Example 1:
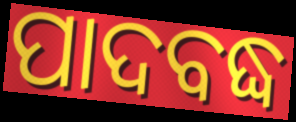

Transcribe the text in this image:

ପାଦବଦ୍ଧ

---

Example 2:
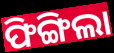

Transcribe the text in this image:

ଫିଙ୍ଗିଲା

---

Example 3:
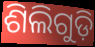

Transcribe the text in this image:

ଶିଲିଗୁଡ଼ି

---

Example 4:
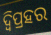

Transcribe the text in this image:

ଦ୍ବିପ୍ରହର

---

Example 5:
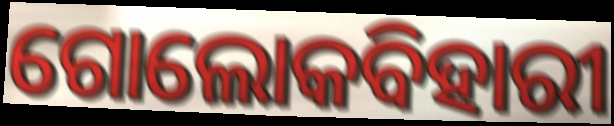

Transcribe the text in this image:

ଗୋଲୋକବିହାରୀ